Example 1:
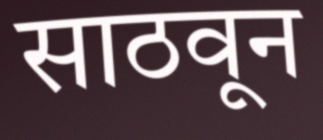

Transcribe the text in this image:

साठवून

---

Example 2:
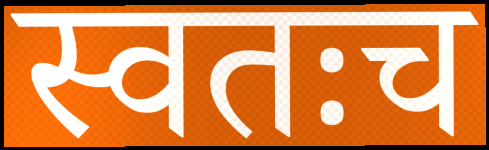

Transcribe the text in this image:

स्वतःच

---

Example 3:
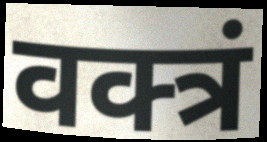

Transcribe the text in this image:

वक्त्रं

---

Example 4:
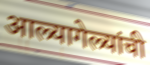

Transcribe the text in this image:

आल्यागेल्यांची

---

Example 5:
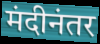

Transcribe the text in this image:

मंदीनंतर